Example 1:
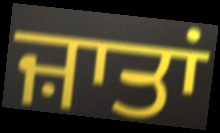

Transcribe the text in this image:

ਜ਼ਾਤਾਂ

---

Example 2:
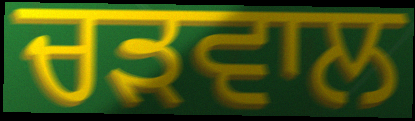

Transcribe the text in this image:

ਚੜਵਾਲ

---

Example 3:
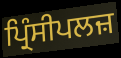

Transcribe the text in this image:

ਪ੍ਰਿੰਸੀਪਲਜ਼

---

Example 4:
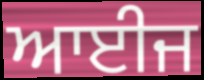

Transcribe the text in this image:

ਆਈਜ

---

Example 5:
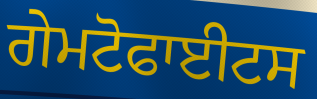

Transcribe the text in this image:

ਗੇਮਟੋਫਾਈਟਸ